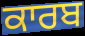
ਕਾਰਬ